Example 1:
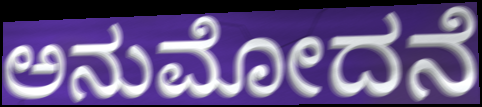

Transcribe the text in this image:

ಅನುಮೋದನೆ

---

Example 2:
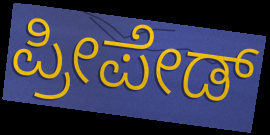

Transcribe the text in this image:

ಪ್ರೀಪೇಡ್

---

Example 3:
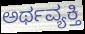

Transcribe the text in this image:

ಅರ್ಥವ್ಯಕ್ತಿ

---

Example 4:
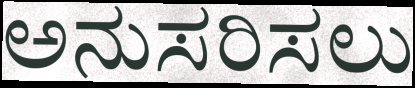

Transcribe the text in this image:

ಅನುಸರಿಸಲು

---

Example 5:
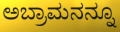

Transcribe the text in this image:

ಅಬ್ರಾಮನನ್ನೂ